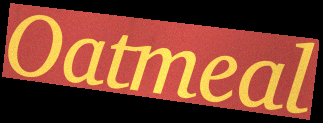
Oatmeal